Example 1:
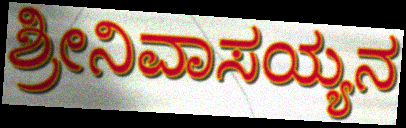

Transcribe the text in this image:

ಶ್ರೀನಿವಾಸಯ್ಯನ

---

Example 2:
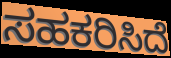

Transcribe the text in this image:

ಸಹಕರಿಸಿದೆ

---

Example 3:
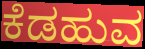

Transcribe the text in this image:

ಕೆಡಹುವ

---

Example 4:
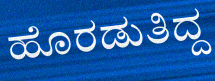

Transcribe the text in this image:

ಹೊರಡುತಿದ್ದ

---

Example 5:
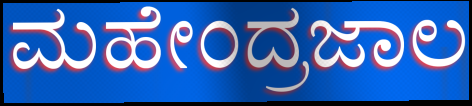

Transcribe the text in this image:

ಮಹೇಂದ್ರಜಾಲ